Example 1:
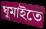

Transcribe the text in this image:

ঘুমাইতে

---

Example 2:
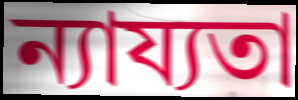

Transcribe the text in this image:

ন্যায্যতা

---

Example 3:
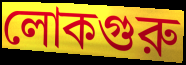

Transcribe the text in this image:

লোকগুরু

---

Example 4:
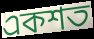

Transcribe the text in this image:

একশত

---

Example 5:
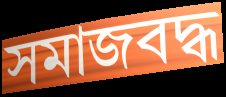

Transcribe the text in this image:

সমাজবদ্ধ